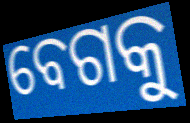
ବେଗକୁ